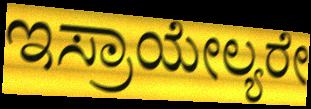
ಇಸ್ರಾಯೇಲ್ಯರೇ